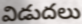
విడుదలు